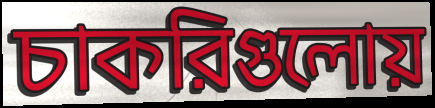
চাকরিগুলোয়